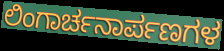
ಲಿಂಗಾರ್ಚನಾರ್ಪಣಗಳ